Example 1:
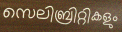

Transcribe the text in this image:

സെലിബ്രിറ്റികളും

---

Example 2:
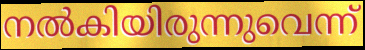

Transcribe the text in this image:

നൽകിയിരുന്നുവെന്ന്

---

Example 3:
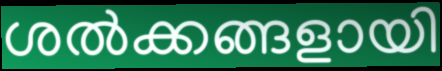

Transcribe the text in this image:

ശൽക്കങ്ങളായി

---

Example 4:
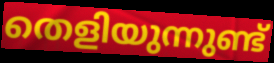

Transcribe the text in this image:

തെളിയുന്നുണ്ട്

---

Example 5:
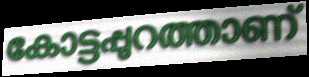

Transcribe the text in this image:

കോട്ടപ്പുറത്താണ്